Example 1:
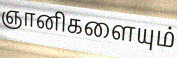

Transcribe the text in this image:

ஞானிகளையும்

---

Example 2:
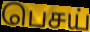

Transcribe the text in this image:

பெசய்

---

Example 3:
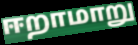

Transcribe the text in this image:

ஈறாமாறு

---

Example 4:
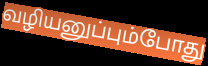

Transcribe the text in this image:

வழியனுப்பும்போது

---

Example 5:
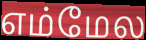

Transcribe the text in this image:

எம்மேல